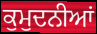
ਕੁਮੁਦਨੀਆਂ